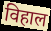
विहाल